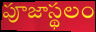
పూజాస్థలం